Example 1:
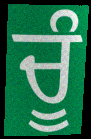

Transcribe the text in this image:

ਚੂੰ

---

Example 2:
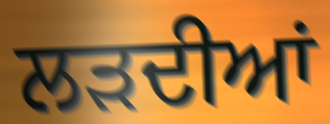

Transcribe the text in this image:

ਲੜਦੀਆਂ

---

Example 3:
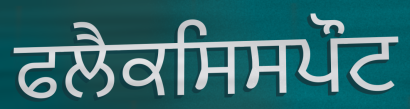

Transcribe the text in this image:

ਫਲੈਕਸਿਸਪੌਟ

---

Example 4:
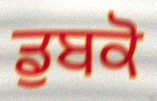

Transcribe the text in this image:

ਡੁਬਕੋ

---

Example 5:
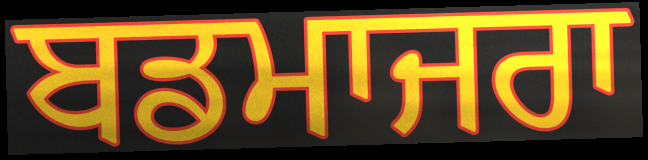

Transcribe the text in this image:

ਬਡਮਾਜਰਾ